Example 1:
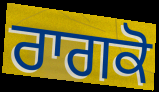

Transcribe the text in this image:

ਰਾਗਕੋ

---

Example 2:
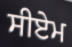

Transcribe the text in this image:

ਸੀਏਮ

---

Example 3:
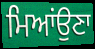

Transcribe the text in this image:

ਮਿਆਂਉਣਾ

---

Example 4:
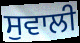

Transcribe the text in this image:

ਸੁਵਾਲੀ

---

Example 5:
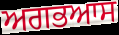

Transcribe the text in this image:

ਅਗਭਆਸ